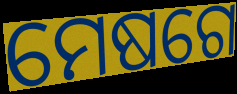
ମେଷଗେ